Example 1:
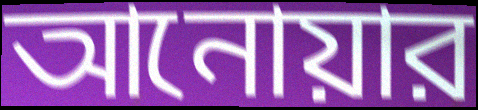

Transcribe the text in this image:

আনোয়ার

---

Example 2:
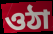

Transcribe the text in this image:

ওঠা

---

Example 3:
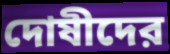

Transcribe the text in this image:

দোষীদের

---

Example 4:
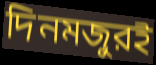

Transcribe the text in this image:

দিনমজুরই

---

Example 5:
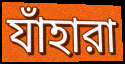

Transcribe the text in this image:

যাঁহারা